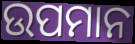
ଉପମାନ